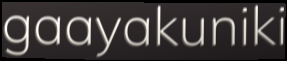
gaayakuniki